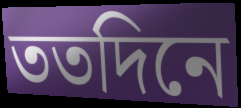
ততদিনে